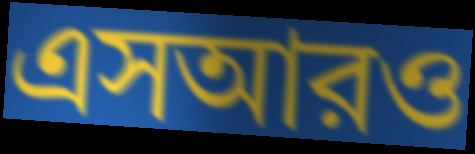
এসআরও